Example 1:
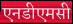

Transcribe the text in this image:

एनडीएमसी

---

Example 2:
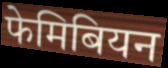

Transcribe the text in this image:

फेमिबियन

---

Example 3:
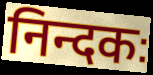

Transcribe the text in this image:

निन्दकः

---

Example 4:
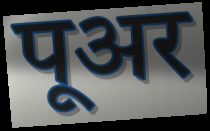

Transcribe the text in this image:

पूअर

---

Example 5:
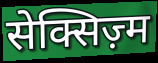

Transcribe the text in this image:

सेक्सिज़्म